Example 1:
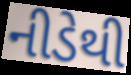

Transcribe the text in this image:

નીડેથી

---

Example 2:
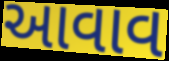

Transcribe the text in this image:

આવાવ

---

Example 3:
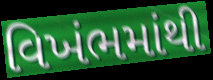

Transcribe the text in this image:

વિખંભમાંથી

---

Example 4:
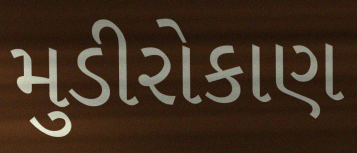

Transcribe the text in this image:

મુડીરોકાણ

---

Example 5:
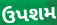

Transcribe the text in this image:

ઉપશમ